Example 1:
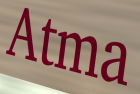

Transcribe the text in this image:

Atma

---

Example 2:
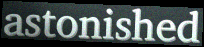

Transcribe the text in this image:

astonished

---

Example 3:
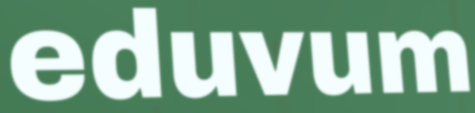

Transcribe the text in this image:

eduvum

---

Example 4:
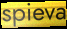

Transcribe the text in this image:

spieva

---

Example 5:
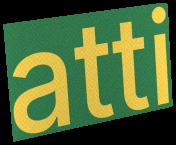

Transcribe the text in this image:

atti